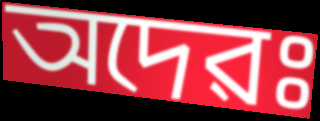
অদেৱঃ